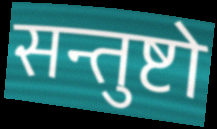
सन्तुष्टो